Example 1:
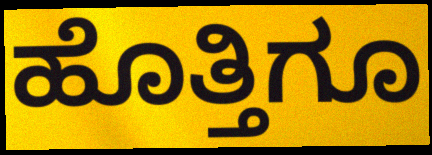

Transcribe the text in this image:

ಹೊತ್ತಿಗೂ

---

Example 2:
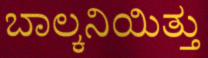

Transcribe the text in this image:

ಬಾಲ್ಕನಿಯಿತ್ತು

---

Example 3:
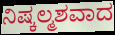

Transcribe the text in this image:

ನಿಷ್ಕಲ್ಮಶವಾದ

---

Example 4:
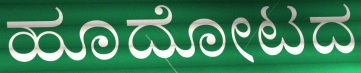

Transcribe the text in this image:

ಹೂದೋಟದ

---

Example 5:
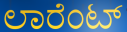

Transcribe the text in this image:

ಲಾರೆಂಟ್